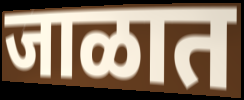
जाळात